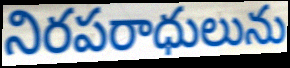
నిరపరాధులును